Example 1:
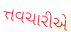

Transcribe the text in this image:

ત્તવચારીએ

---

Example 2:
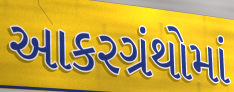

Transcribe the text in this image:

આકરગ્રંથોમાં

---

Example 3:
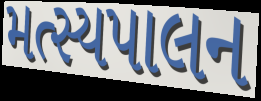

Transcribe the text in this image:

મત્સ્યપાલન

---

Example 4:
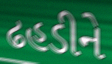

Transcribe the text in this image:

ઢહડીને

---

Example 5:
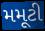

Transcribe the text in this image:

મમૂટી